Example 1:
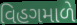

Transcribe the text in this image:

વિહગમાળે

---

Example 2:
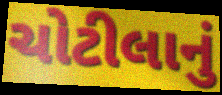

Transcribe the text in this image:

ચોટીલાનું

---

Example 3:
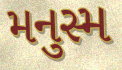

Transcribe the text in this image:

મનુસ્મ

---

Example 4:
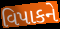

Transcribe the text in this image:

વિપાકને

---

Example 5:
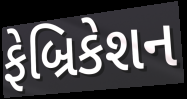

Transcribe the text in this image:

ફેબ્રિકેશન